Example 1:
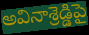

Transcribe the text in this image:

అవినాశ్రెడ్డిపై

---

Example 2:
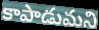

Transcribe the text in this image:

కాపాడుమని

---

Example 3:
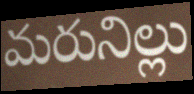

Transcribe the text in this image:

మరునిల్లు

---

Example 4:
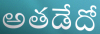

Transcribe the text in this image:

అతడేదో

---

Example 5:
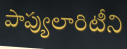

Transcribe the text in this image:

పాప్యులారిటీని